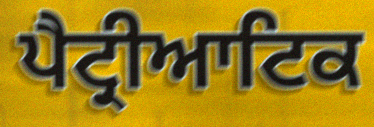
ਪੈਟ੍ਰੀਆਟਿਕ